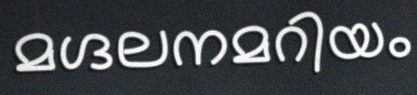
മഗ്ദലനമറിയം